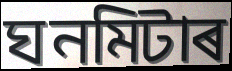
ঘনমিটাৰ